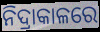
ନିଦ୍ରାକାଳରେ